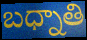
బధ్నాతి